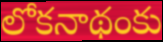
లోకనాథంకు